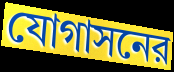
যোগাসনের